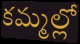
కమ్మల్లో